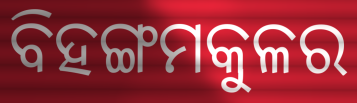
ବିହଙ୍ଗମକୁଳର